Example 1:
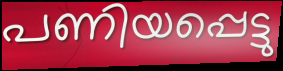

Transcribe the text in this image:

പണിയപ്പെട്ടു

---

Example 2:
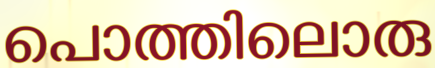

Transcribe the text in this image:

പൊത്തിലൊരു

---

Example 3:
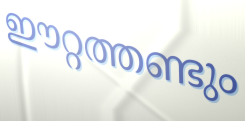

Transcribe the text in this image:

ഈറ്റത്തണ്ടും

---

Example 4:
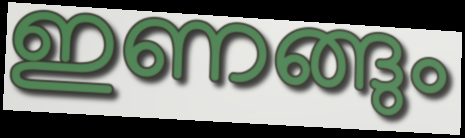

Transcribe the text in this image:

ഇണങ്ങും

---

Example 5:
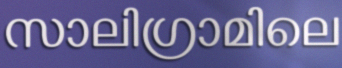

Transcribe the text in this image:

സാലിഗ്രാമിലെ